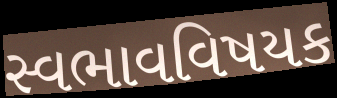
સ્વભાવવિષયક